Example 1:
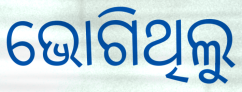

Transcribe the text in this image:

ଭୋଗିଥିଲୁ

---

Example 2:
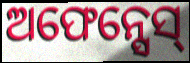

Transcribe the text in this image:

ଅଫେନ୍ସେସ୍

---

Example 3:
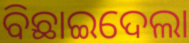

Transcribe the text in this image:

ବିଛାଇଦେଲା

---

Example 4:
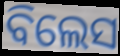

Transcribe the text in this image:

ବିଲେସ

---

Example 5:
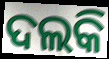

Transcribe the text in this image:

ଦଲକି